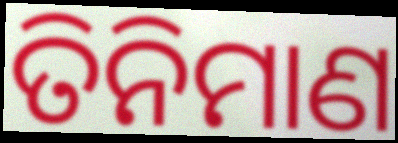
ତିନିମାଣ